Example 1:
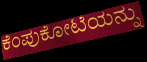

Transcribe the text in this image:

ಕೆಂಪುಕೋಟೆಯನ್ನು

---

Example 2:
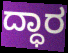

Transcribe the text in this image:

ದ್ಧಾರ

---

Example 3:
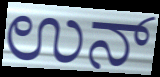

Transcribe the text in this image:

ಉನ್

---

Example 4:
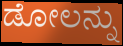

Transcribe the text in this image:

ಡೋಲನ್ನು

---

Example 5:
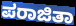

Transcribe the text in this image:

ಪರಾಜಿತಾ